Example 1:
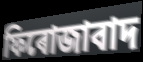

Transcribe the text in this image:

ফিৰোজাবাদ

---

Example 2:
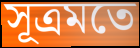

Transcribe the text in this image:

সূত্ৰমতে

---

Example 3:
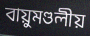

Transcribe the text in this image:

বায়ুমণ্ডলীয়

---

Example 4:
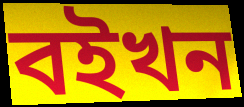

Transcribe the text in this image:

বইখন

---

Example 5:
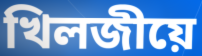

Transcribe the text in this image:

খিলজীয়ে